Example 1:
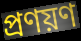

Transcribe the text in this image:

প্রণয়ণ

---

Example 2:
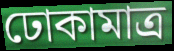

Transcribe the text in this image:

ঢোকামাত্র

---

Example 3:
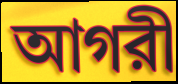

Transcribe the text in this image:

আগরী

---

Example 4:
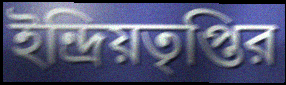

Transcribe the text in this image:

ইন্দ্রিয়তৃপ্তির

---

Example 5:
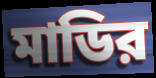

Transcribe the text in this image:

মাডির